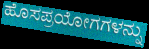
ಹೊಸಪ್ರಯೋಗಗಳನ್ನು